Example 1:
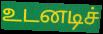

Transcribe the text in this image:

உடனடிச்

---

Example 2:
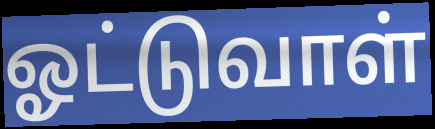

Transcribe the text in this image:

ஓட்டுவாள்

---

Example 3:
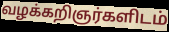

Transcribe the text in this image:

வழக்கறிஞர்களிடம்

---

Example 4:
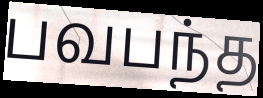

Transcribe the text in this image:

பவபந்த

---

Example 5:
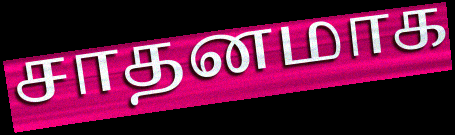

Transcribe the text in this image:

சாதனமாக